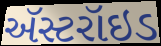
ઍસ્ટરૉઇડ